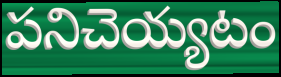
పనిచెయ్యటం